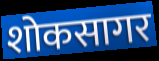
शोकसागर